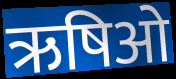
ऋषिओ